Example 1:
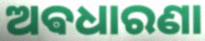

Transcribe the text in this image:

ଅଵଧାରଣା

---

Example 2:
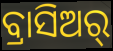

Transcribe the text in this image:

ବ୍ରାସିଅର୍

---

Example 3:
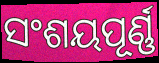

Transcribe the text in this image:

ସଂଶୟପୂର୍ଣ୍ଣ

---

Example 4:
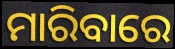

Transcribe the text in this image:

ମାରିବାରେ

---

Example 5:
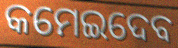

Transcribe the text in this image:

କମେଇଦେବ